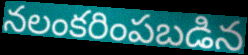
నలంకరింపబడిన